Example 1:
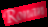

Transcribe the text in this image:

Ronan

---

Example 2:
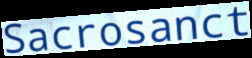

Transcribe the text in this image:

Sacrosanct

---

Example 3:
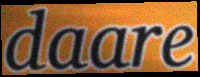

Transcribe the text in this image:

daare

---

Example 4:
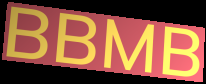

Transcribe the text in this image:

BBMB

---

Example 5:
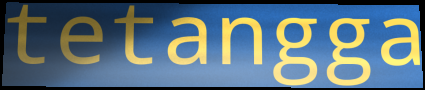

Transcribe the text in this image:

tetangga